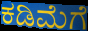
ಕಡಿಮೆಗೆ